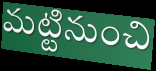
మట్టినుంచి